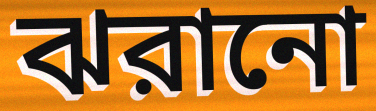
ঝরানো